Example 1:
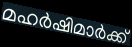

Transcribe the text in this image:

മഹർഷിമാർക്ക്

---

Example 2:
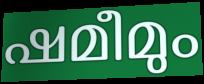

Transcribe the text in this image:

ഷമീമും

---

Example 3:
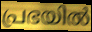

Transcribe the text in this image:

പ്രഭയിൽ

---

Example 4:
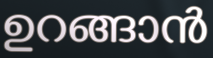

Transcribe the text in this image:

ഉറങ്ങാൻ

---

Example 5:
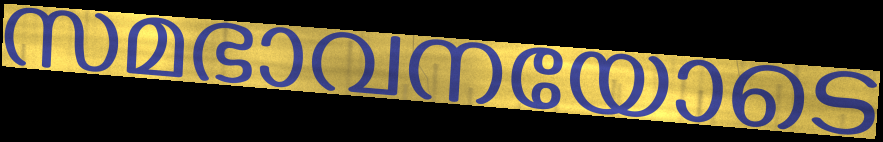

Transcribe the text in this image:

സമഭാവനയോടെ